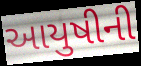
આયુષીની